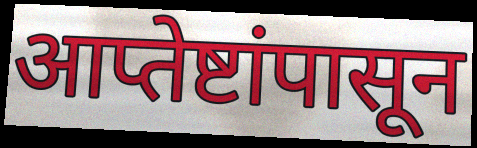
आप्तेष्टांपासून